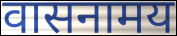
वासनामय